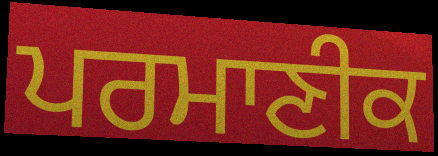
ਪਰਮਾਣੀਕ